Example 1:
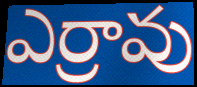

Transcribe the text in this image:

ఎర్రావు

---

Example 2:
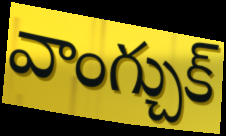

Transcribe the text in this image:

వాంగ్చుక్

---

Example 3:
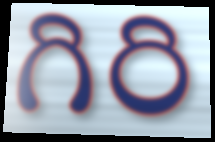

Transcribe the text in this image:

గిరి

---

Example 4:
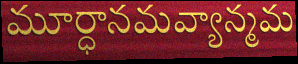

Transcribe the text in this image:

మూర్ధానమవ్యాన్మమ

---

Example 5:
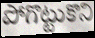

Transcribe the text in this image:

పోగొట్టుకొని